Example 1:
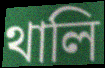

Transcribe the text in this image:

থালি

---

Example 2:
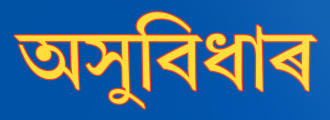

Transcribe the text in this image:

অসুবিধাৰ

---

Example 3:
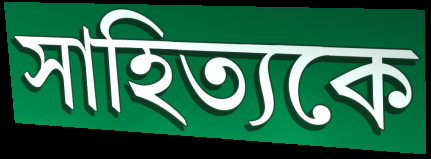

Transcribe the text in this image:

সাহিত্য়কে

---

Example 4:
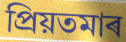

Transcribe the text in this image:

প্ৰিয়তমাৰ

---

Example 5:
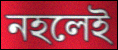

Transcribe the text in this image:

নহলেই